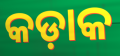
କଡ଼ାକ